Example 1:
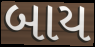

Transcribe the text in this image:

બાય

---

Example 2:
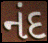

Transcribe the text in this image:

નંદ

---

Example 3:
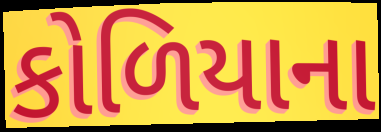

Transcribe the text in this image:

કોળિયાના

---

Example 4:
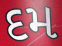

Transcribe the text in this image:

દમ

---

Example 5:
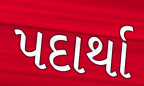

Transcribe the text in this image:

પદાર્થા